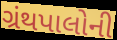
ગ્રંથપાલોની